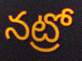
నట్రో